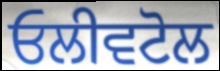
ਓਲੀਵਟੋਲ